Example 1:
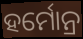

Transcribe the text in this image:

ହର୍ମୋନ୍ର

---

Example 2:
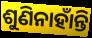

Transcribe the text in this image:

ଶୁଣିନାହାଁନ୍ତି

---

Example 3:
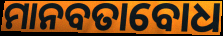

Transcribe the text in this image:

ମାନବତାବୋଧ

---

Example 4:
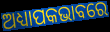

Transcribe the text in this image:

ଅଧ୍ୟାପକଭାବରେ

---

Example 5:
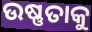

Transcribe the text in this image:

ଉଷ୍ଣତାକୁ